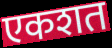
एकशत